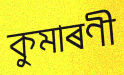
কুমাৰণী